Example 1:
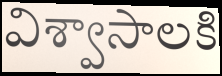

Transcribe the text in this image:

విశ్వాసాలకి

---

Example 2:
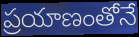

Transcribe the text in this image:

ప్రయాణంతోనే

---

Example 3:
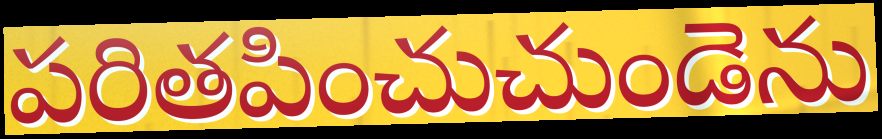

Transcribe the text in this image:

పరితపించుచుండెను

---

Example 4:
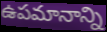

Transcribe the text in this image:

ఉపమానాన్ని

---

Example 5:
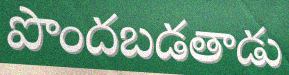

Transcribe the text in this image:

పొందబడతాడు